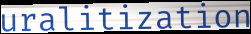
uralitization